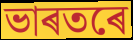
ভাৰতৰে